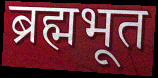
ब्रह्मभूत